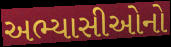
અભ્યાસીઓનો